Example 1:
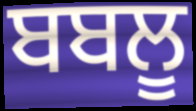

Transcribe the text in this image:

ਬਬਲੂ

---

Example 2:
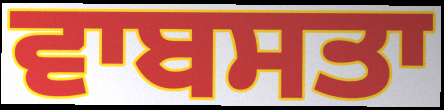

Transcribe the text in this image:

ਵਾਬਸਤਾ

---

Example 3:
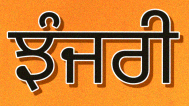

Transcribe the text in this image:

ਝੰਜਰੀ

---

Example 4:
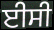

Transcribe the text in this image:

ਈਸੀ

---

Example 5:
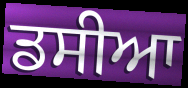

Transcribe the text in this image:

ਡਸੀਆ